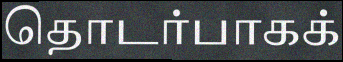
தொடர்பாகக்